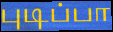
புடிப்பா